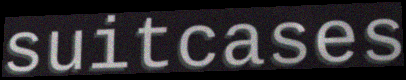
suitcases